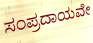
ಸಂಪ್ರದಾಯವೇ